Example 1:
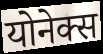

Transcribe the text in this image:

योनेक्स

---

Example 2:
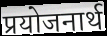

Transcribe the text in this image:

प्रयोजनार्थ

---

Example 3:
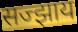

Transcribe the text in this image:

सज्झाय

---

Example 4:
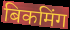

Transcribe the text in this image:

बिकमिंग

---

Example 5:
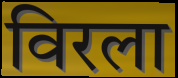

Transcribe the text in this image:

विरला